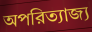
অপরিত্যাজ্য